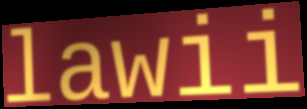
lawii